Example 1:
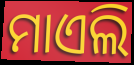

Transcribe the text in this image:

ମାଏଲି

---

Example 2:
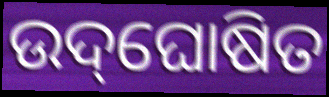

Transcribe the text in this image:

ଉଦ୍‌ଘୋଷିତ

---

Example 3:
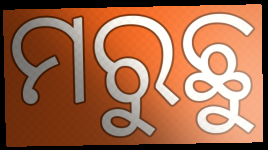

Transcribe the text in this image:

ମରୁଛୁ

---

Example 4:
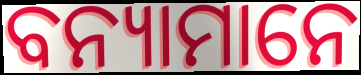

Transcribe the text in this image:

ବନ୍ୟାମାନେ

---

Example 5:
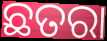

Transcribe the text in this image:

ଛତରା